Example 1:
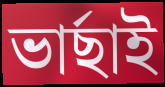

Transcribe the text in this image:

ভাৰ্ছাই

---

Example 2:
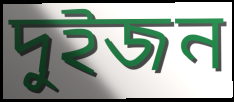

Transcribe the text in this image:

দুইজন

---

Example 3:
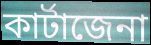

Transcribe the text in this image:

কাৰ্টাজেনা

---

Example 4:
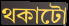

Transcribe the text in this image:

থকাটো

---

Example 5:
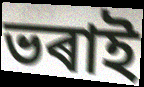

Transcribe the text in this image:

ভৰাই